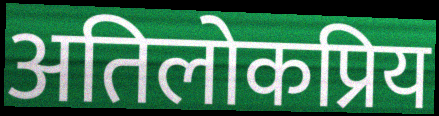
अतिलोकप्रिय